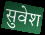
सुवेश